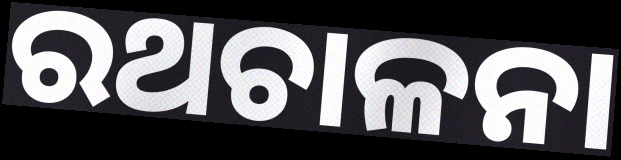
ରଥଚାଳନା